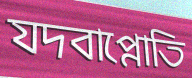
যদবাপ্নোতি